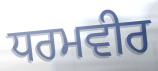
ਧਰਮਵੀਰ